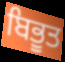
ਬਿਭੂਤ